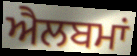
ਐਲਬਮਾਂ